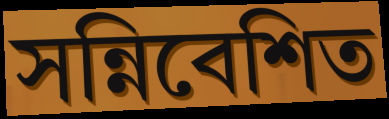
সন্নিবেশিত